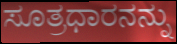
ಸೂತ್ರಧಾರನನ್ನು